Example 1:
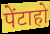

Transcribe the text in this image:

पेंटाहो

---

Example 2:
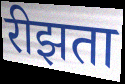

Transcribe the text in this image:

रीझता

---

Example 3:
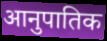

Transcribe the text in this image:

आनुपातिक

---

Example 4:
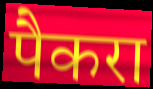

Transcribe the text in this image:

पैकरा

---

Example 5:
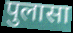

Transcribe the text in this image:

पुलासा